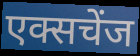
एक्सचेंज